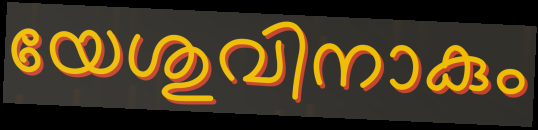
യേശുവിനാകും